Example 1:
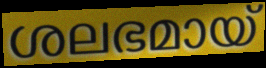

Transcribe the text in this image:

ശലഭമായ്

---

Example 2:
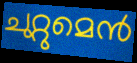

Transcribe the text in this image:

ചുറ്റുമെൻ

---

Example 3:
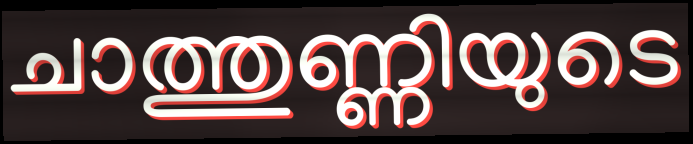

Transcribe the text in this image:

ചാത്തുണ്ണിയുടെ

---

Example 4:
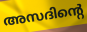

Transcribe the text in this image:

അസദിന്റെ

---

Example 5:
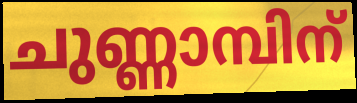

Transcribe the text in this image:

ചുണ്ണാമ്പിന്